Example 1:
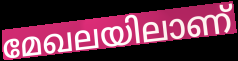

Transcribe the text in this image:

മേഖലയിലാണ്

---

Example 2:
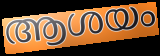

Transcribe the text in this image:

ആശയം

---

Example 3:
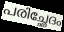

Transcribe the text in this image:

പരിച്ഛേദം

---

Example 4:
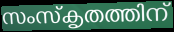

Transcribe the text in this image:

സംസ്‌കൃതത്തിന്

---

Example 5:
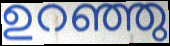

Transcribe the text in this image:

ഉറഞ്ഞു